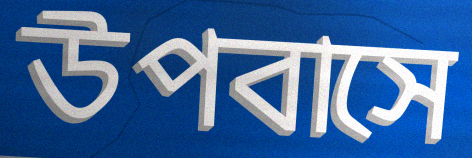
উপবাসে